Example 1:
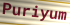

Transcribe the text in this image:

Puriyum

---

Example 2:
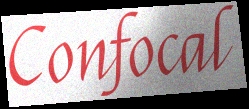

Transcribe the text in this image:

Confocal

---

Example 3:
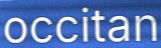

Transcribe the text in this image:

occitan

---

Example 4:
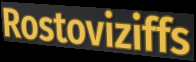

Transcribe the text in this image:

Rostoviziffs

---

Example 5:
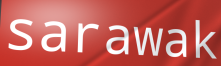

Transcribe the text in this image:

sarawak